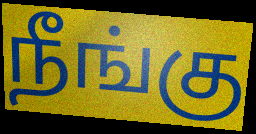
நீங்கு